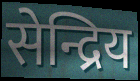
सेन्द्रिय